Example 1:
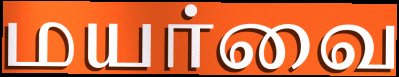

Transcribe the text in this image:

மயர்வை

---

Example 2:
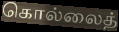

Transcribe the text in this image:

கொல்லைத்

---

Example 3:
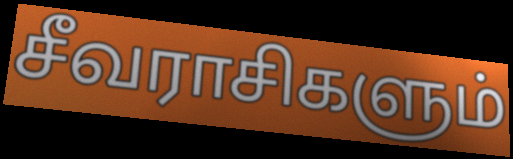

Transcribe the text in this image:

சீவராசிகளும்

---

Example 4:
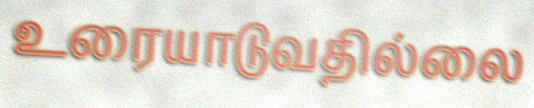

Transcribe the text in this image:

உரையாடுவதில்லை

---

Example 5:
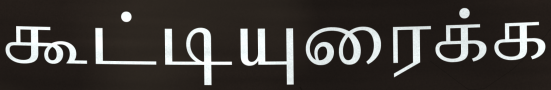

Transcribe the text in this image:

கூட்டியுரைக்க